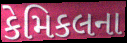
કેમિકલના